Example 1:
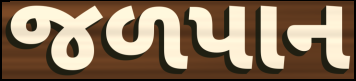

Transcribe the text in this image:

જળપાન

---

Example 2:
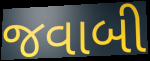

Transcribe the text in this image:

જવાબી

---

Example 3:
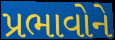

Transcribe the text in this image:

પ્રભાવોને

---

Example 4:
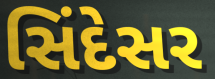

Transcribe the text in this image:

સિંદેસર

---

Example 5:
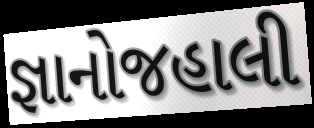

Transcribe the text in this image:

જ્ઞાનોજહાલી